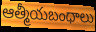
ఆత్మీయబంధాలు